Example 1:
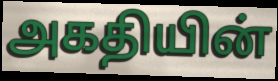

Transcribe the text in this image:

அகதியின்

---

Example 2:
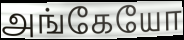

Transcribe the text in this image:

அங்கேயோ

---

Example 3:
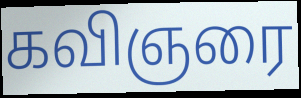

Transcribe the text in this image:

கவிஞரை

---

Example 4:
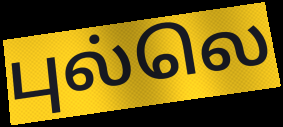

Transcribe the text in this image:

புல்லெ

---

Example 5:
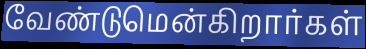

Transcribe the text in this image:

வேண்டுமென்கிறார்கள்